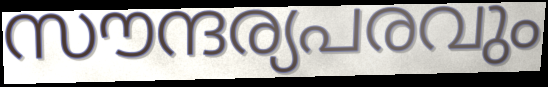
സൗന്ദര്യപരവും